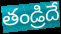
తండ్రిదే